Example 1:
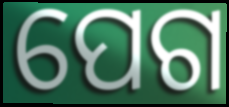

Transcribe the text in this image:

ପେଗ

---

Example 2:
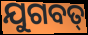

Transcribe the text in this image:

ଯୁଗବତ୍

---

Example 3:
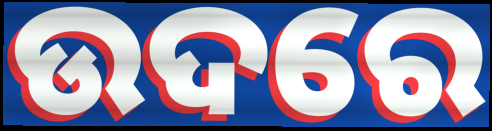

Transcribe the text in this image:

ଉଦରେ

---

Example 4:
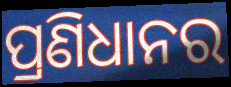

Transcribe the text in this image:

ପ୍ରଣିଧାନର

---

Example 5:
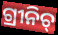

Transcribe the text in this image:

ଗ୍ରୀନିଚ୍